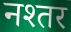
नश्तर